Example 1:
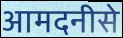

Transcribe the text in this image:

आमदनीसे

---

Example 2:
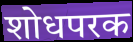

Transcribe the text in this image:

शोधपरक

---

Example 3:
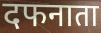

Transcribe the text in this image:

दफनाता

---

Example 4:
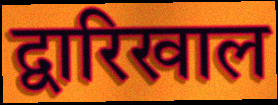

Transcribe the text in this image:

द्वारिखाल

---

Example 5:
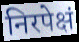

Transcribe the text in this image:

निरपेक्षं